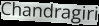
Chandragiri